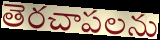
తెరచాపలను